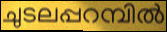
ചുടലപ്പറമ്പിൽ